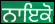
ਨਾਇਕੋ